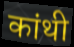
कांथी